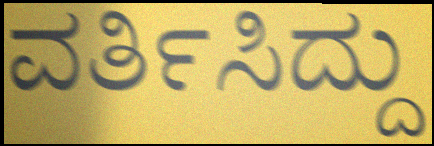
ವರ್ತಿಸಿದ್ದು